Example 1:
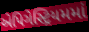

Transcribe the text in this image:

એપિગેસ્ટ્રિયમમાં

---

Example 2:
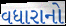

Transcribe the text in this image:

વધારાનો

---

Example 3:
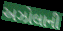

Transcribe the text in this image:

અઝોલાની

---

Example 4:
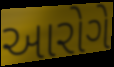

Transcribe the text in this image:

આરોગે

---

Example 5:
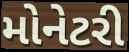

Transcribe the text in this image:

મોનેટરી